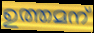
ഉത്തമന്